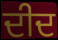
ਦੀਦ